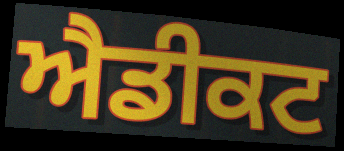
ਐਡੀਕਟ